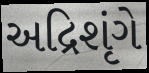
અદ્રિશૃંગે